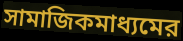
সামাজিকমাধ্যমের